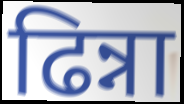
ढिन्ना